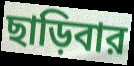
ছাড়িবার